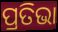
ପ୍ରତିଭା